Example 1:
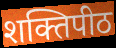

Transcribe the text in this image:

शक्तिपीठ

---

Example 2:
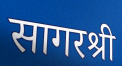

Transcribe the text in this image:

सागरश्री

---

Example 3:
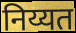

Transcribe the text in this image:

निय्यत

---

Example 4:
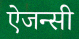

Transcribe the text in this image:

ऐजन्सी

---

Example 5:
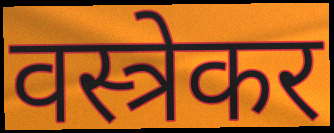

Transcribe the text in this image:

वस्त्रेकर